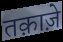
तक़ाज़े